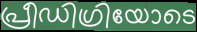
പ്രീഡിഗ്രിയോടെ